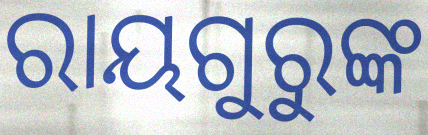
ରାୟଗୁରୁଙ୍କ